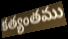
కత్యంతము